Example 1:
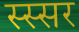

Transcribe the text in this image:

स्स्सर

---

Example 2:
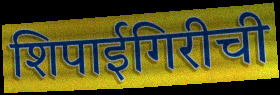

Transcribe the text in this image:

शिपाईगिरीची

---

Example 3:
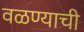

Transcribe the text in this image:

वळण्याची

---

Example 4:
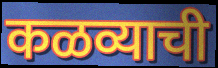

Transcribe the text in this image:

कळव्याची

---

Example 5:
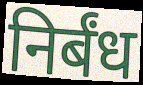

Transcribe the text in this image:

निर्बंध